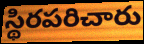
స్థిరపరిచారు